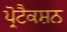
ਪ੍ਰੋਟੈਕਸ਼ਨ